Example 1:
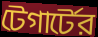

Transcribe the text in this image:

টেগার্টের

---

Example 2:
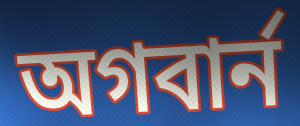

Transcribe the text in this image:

অগবার্ন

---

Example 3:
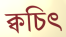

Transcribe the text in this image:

ক্বচিৎ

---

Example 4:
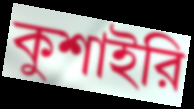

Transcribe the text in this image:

কুশাইরি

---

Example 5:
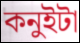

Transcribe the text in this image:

কনুইটা